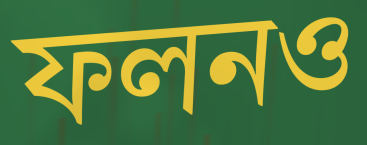
ফলনও